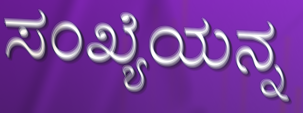
ಸಂಖ್ಯೆಯನ್ನ